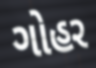
ગોહર